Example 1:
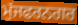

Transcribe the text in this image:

ਮੁੱਜਫਰਨਗਰ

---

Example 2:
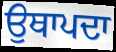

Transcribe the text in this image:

ਉਥਾਪਦਾ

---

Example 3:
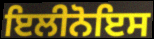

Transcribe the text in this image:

ਇਲੀਨੋਇਸ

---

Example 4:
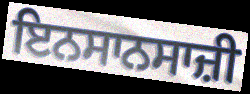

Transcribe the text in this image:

ਇਨਸਾਨਸਾਜ਼ੀ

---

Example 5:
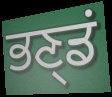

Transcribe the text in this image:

ਭਣ੍ਡਂ